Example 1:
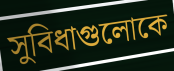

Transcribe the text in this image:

সুবিধাগুলোকে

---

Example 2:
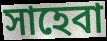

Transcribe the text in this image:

সাহেবা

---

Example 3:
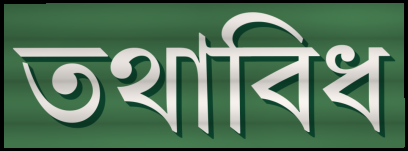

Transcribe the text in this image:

তথাবিধ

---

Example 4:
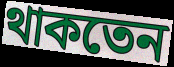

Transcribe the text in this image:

থাকতেন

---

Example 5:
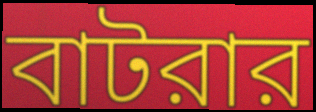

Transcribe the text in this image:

বাটরার